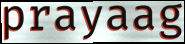
prayaag